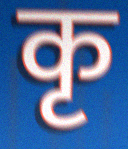
कृ